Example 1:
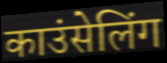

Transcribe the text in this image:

काउंसेलिंग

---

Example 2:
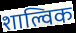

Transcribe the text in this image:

शाल्विक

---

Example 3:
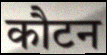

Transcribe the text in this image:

कौटन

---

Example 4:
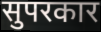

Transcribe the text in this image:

सुपरकार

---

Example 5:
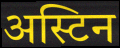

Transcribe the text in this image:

अस्टिन